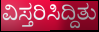
ವಿಸ್ತರಿಸಿದ್ದಿತು